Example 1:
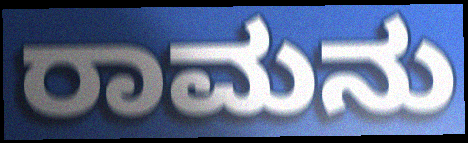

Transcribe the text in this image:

ರಾಮನು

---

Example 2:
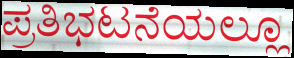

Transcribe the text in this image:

ಪ್ರತಿಭಟನೆಯಲ್ಲೂ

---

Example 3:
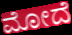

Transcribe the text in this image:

ಮೋದೆ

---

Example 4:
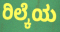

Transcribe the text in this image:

ರಿಲ್ಕೆಯ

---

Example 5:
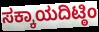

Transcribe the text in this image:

ಸಕ್ಕಾಯದಿಟ್ಠಿಂ